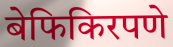
बेफिकिरपणे